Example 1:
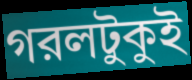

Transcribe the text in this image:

গরলটুকুই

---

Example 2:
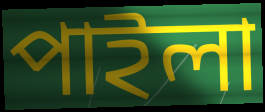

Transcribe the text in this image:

পাইলা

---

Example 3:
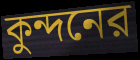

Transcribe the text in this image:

কুন্দনের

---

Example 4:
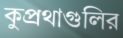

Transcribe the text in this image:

কুপ্রথাগুলির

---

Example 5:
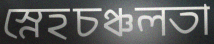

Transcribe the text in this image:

স্নেহচঞ্চলতা